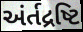
અંર્તદ્રષ્ટિ